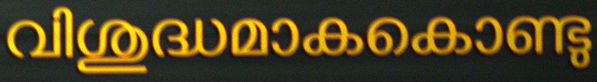
വിശുദ്ധമാകകൊണ്ടു